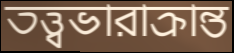
তত্ত্বভারাক্রান্ত